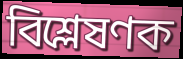
বিশ্লেষণক